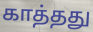
காத்தது